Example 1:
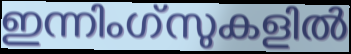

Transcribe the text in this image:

ഇന്നിംഗ്സുകളിൽ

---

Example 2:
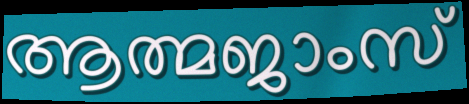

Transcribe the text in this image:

ആത്മജാംസ്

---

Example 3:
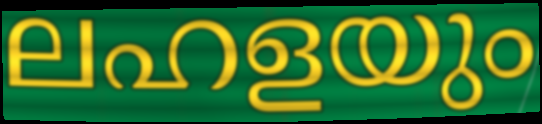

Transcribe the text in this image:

ലഹളയും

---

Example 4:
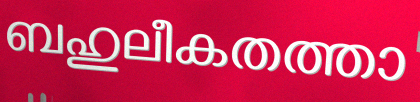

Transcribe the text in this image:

ബഹുലീകതത്താ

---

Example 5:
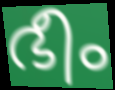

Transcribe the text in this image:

ഭീം